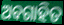
ଅବଗାହିତ